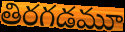
తిరగడమూ